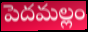
పెదమల్లం